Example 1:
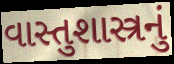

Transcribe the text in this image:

વાસ્તુશાસ્ત્રનું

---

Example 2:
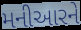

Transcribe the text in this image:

મનીઆરને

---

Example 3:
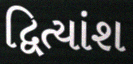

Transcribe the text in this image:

દ્વિત્યાંશ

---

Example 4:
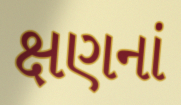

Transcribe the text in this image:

ક્ષણનાં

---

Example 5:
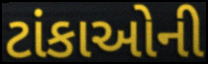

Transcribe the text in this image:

ટાંકાઓની